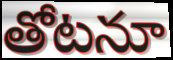
తోటనూ